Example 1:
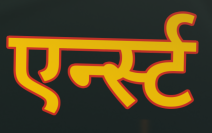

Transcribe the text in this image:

एर्न्स्ट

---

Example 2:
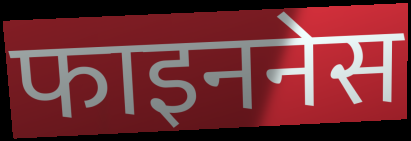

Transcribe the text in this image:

फाइननेस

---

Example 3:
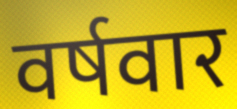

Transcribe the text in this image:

वर्षवार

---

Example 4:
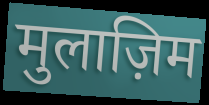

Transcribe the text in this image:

मुलाज़िम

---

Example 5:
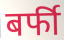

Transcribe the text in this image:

बर्फी